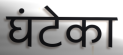
घंटेका